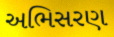
અભિસરણ